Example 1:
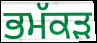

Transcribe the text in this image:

ਭਮੱਕੜ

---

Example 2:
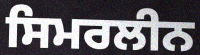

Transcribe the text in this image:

ਸਿਮਰਲੀਨ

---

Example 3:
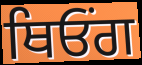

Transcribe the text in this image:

ਥਿਓਂਗ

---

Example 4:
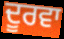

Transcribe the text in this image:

ਦੂਰਵਾ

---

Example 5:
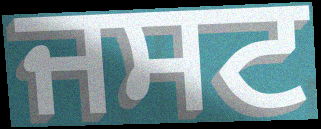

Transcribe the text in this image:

ਜਸਟ